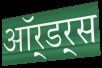
ऑर्डर्स